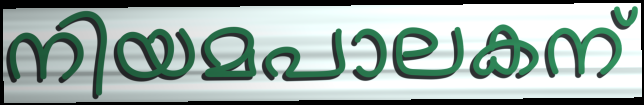
നിയമപാലകന്